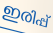
ഇരിപ്പ്